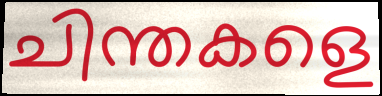
ചിന്തകളെ